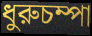
ধুরুচম্পা